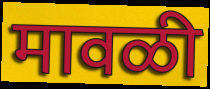
मावळी